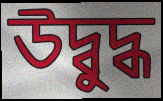
উদ্বুদ্ধ